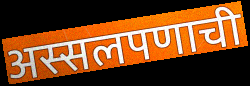
अस्सलपणाची